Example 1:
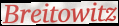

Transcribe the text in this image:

Breitowitz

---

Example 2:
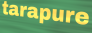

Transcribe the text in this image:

tarapure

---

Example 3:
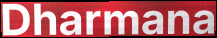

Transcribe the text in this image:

Dharmana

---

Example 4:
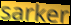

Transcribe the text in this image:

sarker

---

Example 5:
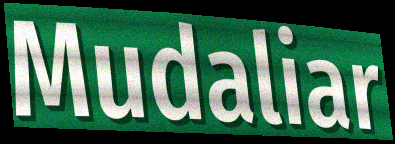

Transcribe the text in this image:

Mudaliar